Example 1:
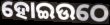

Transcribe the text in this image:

ହୋଇଉଠେ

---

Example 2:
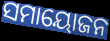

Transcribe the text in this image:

ସମାୟୋଜନ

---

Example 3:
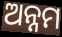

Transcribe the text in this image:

ଅନ୍ନମ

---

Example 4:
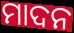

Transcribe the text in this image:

ମାଦନ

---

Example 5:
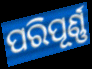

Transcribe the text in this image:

ପରିପୂର୍ଣ୍ଣ